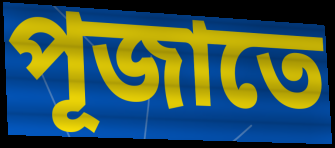
পূজাতে